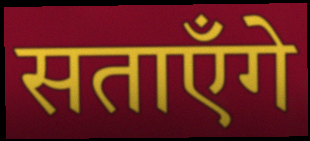
सताएँगे